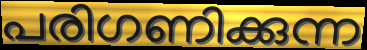
പരിഗണിക്കുന്ന